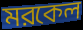
মরকেল